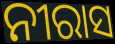
ନୀରାସ